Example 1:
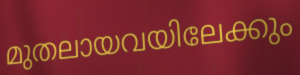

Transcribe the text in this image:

മുതലായവയിലേക്കും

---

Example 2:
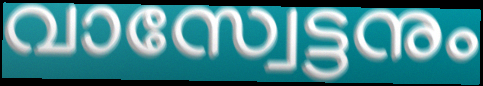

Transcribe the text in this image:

വാസ്വേട്ടനും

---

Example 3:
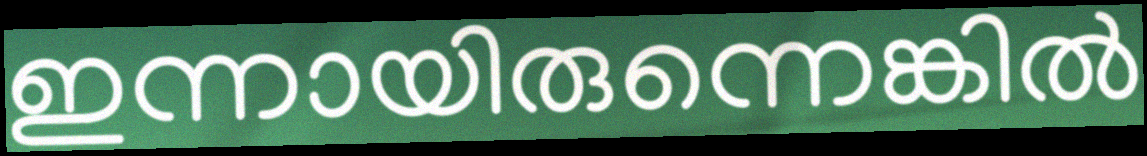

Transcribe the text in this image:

ഇന്നായിരുന്നെങ്കിൽ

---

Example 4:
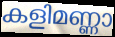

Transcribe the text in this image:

കളിമണ്ണാ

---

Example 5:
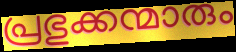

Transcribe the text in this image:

പ്രഭുക്കന്മാരും